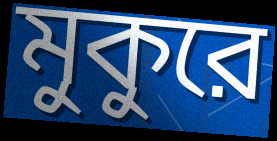
মুকুরে